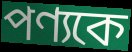
পণ্যকে